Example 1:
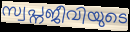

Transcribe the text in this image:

സ്വപ്നജീവിയുടെ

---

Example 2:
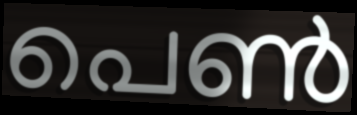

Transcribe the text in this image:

പെൺ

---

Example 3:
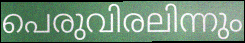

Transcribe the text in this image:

പെരുവിരലിന്നും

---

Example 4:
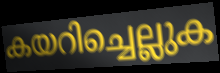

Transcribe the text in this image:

കയറിച്ചെല്ലുക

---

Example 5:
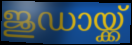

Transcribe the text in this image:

ജുഡായ്ക്ക്